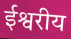
ईश्वरीय